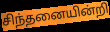
சிந்தனையின்றி